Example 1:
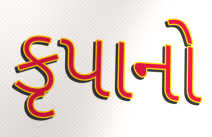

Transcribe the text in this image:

કૃપાનો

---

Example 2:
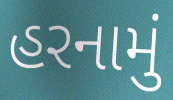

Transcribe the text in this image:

હરનામું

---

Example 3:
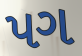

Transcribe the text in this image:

પગ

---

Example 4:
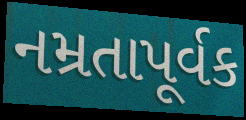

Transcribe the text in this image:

નમ્રતાપૂર્વક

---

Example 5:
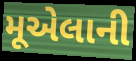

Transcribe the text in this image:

મૂએલાની